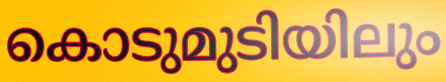
കൊടുമുടിയിലും